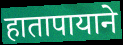
हातापायाने